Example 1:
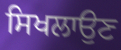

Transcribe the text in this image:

ਸਿਖਲਾਉਣ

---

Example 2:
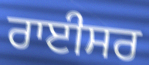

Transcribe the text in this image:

ਰਾਈਸਰ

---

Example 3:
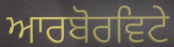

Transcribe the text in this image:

ਆਰਬੋਰਵਿਟੇ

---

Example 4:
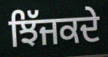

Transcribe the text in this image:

ਝਿੱਜਕਦੇ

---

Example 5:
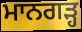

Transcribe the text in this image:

ਮਾਨਗੜ੍ਹ